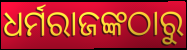
ଧର୍ମରାଜଙ୍କଠାରୁ